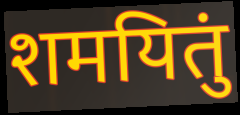
शमयितुं